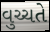
વુચ્ચતે